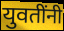
युवतींनी